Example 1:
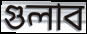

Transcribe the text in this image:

গুলাব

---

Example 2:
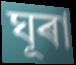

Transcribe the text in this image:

ঘূৰা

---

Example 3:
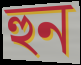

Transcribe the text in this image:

হুন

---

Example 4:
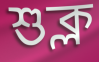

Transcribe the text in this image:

শুক্ল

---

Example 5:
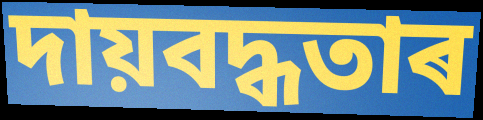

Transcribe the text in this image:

দায়বদ্ধতাৰ